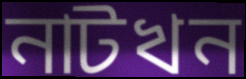
নাটখন